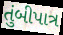
તુંબીપાત્ર